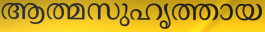
ആത്മസുഹൃത്തായ